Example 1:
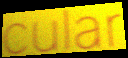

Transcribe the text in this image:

cular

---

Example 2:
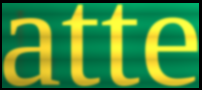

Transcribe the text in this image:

atte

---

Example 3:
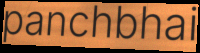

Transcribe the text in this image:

panchbhai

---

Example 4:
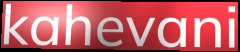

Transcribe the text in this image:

kahevani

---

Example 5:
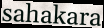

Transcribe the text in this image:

sahakara